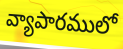
వ్యాపారములో